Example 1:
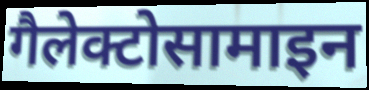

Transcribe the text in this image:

गैलेक्टोसामाइन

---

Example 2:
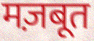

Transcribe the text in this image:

मज़बूत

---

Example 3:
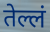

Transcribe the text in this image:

तेल्लं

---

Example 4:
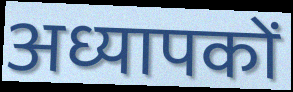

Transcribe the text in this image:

अध्यापकों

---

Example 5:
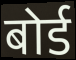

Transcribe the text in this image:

बोर्ड